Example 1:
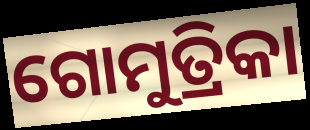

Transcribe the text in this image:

ଗୋମୁତ୍ରିକା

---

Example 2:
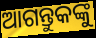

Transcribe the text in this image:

ଆଗନ୍ତୁକଙ୍କୁ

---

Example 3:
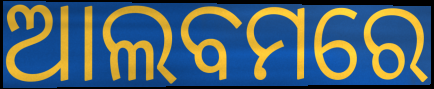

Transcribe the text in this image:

ଆଲବମରେ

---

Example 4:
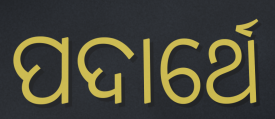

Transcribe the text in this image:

ପଦାର୍ଥେ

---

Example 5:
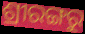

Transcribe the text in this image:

ଶ୍ରୀରଙ୍ଗରୁ